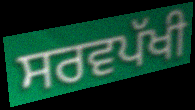
ਸਰਵਪੱਖੀ